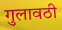
गुलावठी